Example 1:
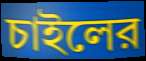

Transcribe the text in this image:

চাইলের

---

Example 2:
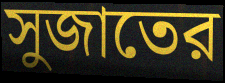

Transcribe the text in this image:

সুজাতের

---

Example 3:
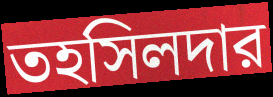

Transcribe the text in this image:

তহসিলদার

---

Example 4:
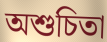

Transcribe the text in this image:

অশুচিতা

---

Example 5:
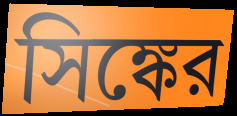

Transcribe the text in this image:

সিঙ্কের